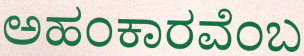
ಅಹಂಕಾರವೆಂಬ